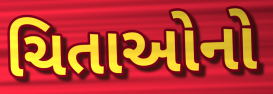
ચિતાઓનો